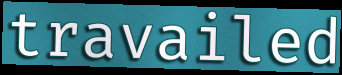
travailed